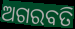
ଅଗରବତି